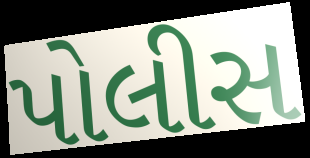
પોલીસ